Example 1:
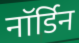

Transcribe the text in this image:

नॉर्डिन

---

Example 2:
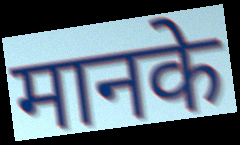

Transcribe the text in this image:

मानके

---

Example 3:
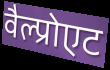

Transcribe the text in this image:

वैल्प्रोएट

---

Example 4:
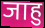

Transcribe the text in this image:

जाहु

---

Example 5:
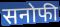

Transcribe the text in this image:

सनोफी